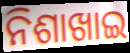
ନିଶାଖାଇ